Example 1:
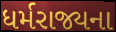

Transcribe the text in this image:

ધર્મરાજ્યના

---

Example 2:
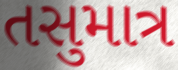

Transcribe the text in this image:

તસુમાત્ર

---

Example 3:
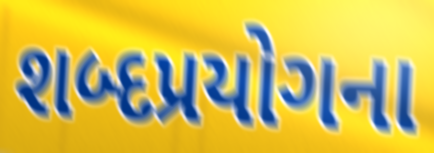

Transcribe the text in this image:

શબ્દપ્રયોગના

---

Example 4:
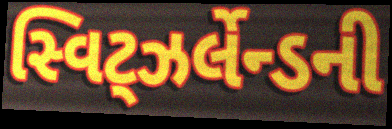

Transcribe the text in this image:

સ્વિટ્ઝર્લેન્ડની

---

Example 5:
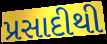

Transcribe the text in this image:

પ્રસાદીથી